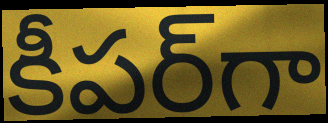
కీపర్‌గా